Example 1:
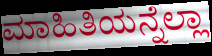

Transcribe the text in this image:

ಮಾಹಿತಿಯನ್ನೆಲ್ಲಾ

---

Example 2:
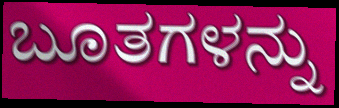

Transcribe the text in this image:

ಬೂತಗಳನ್ನು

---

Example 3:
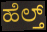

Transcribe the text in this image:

ಹೆಲ್ತ್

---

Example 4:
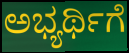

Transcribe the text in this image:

ಅಭ್ಯರ್ಥಿಗೆ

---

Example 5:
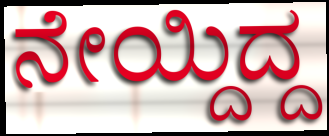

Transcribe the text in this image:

ನೇಯ್ದಿದ್ದ